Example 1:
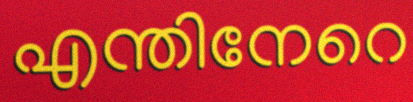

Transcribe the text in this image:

എന്തിനേറെ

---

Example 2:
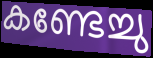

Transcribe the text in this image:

കണ്ടേച്ചു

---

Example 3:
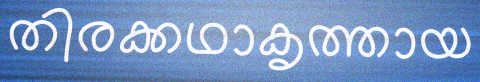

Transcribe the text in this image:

തിരക്കഥാകൃത്തായ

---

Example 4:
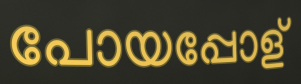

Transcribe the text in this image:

പോയപ്പോള്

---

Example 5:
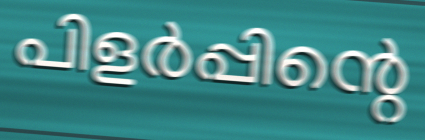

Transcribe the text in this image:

പിളർപ്പിന്റെ